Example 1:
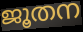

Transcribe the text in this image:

ജൂതന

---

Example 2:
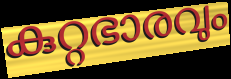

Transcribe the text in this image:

കുറ്റഭാരവും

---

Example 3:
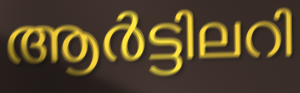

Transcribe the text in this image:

ആർട്ടിലറി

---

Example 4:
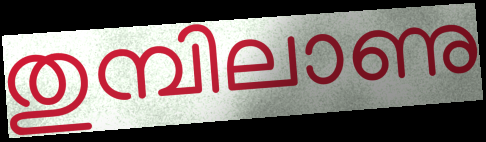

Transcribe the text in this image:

തുമ്പിലാണു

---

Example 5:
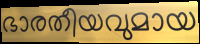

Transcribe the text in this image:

ഭാരതീയവുമായ